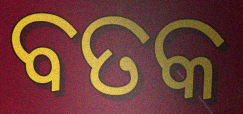
ବତକ